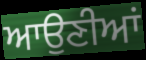
ਆਉਣੀਆਂ